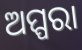
ଅପ୍ପରା